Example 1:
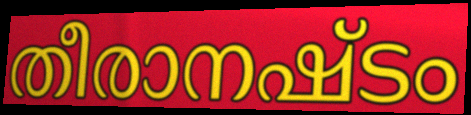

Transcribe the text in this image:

തീരാനഷ്ടം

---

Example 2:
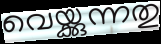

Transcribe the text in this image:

വെയ്ക്കുന്നതു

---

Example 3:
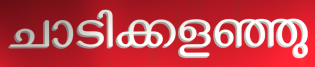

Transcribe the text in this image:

ചാടിക്കളഞ്ഞു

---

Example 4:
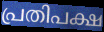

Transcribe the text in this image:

പ്രതിപക്ഷ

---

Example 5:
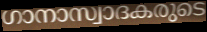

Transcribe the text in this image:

ഗാനാസ്വാദകരുടെ